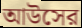
আউসের